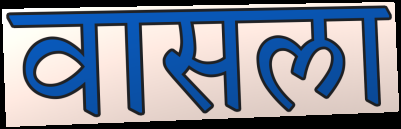
वासला